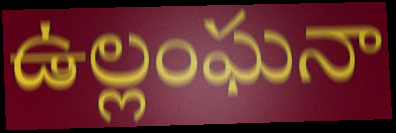
ఉల్లంఘనా